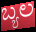
ಬ್ಯಲ